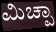
ಮಿಚ್ಪಾ